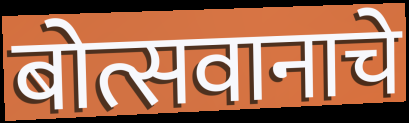
बोत्सवानाचे